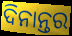
ଦିନାନ୍ତର